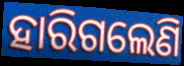
ହାରିଗଲେଣି